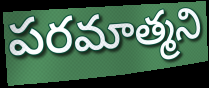
పరమాత్మని